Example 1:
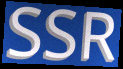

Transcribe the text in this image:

SSR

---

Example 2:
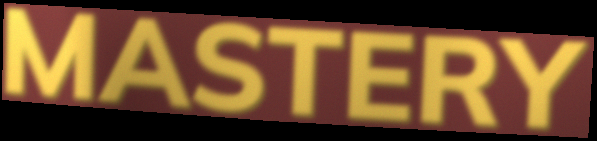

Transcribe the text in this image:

MASTERY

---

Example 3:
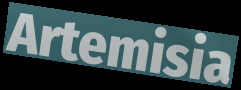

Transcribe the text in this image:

Artemisia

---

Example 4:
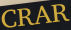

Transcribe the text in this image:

CRAR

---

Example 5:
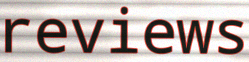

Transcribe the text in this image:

reviews